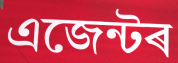
এজেন্টৰ